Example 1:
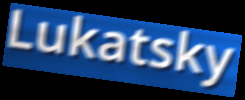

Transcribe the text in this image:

Lukatsky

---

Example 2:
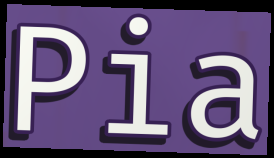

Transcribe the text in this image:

Pia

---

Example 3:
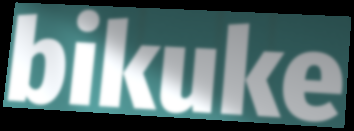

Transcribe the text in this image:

bikuke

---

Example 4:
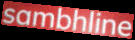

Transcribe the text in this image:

sambhline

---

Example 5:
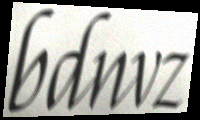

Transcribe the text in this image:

bdnvz